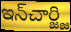
ఇన్‌చార్జ్జి